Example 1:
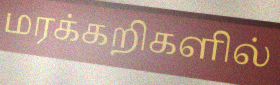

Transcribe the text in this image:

மரக்கறிகளில்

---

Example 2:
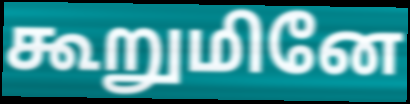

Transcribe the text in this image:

கூறுமினே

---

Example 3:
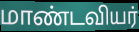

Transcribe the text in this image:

மாண்டவியர்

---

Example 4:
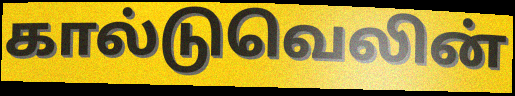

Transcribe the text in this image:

கால்டுவெலின்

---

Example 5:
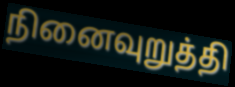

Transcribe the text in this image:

நினைவுறுத்தி